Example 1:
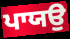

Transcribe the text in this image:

ਪਾਯਉ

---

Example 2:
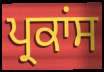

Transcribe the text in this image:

ਪ੍ਰਕਾਂਸ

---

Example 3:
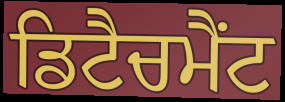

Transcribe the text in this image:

ਡਿਟੈਚਮੈਂਟ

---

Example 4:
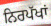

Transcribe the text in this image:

ਨਿਰਪੱਖਾਂ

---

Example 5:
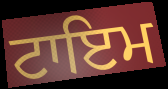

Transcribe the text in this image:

ਟਾਇਮ